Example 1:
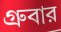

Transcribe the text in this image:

গ্রুবার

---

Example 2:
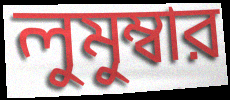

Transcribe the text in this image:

লুমুম্বার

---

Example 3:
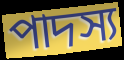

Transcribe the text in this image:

পাদস্য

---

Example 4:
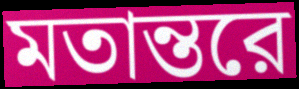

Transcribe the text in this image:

মতান্তরে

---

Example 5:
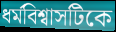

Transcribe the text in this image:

ধর্মবিশ্বাসটিকে